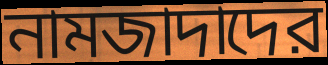
নামজাদাদের